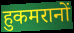
हुकमरानों